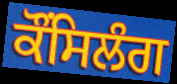
ਕੌਂਸਿਲੰਗ